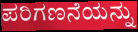
ಪರಿಗಣನೆಯನ್ನು